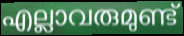
എല്ലാവരുമുണ്ട്